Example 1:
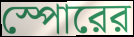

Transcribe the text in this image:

স্পোরের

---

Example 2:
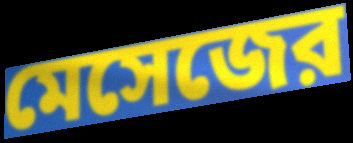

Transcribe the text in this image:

মেসেজের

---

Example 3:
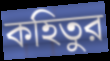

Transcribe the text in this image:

কহিতুর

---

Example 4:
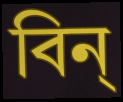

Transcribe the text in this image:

বিন্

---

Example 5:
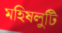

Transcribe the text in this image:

মহিষলুটি